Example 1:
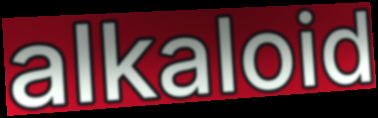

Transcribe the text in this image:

alkaloid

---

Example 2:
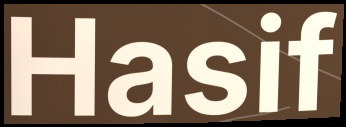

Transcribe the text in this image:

Hasif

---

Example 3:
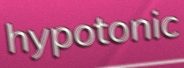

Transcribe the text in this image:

hypotonic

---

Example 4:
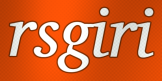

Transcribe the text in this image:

rsgiri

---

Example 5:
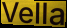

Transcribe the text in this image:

Vella